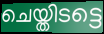
ചെയ്തിടട്ടെ